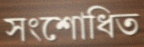
সংশোধিত